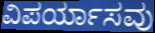
ವಿಪರ್ಯಾಸವು